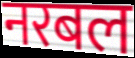
नरबल